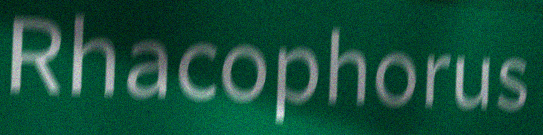
Rhacophorus